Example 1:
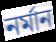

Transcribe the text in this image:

নৰ্মান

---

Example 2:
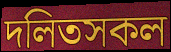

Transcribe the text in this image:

দলিতসকল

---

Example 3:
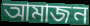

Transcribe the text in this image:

আমাজন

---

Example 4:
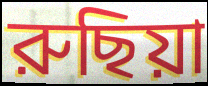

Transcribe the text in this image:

ৰুছিয়া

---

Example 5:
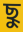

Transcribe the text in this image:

ছু